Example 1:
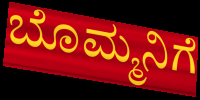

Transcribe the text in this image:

ಬೊಮ್ಮನಿಗೆ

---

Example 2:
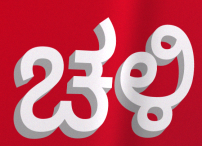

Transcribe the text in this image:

ಚಳಿ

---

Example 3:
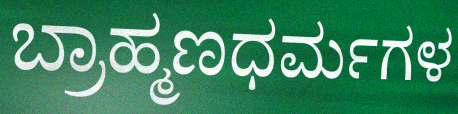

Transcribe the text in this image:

ಬ್ರಾಹ್ಮಣಧರ್ಮಗಳ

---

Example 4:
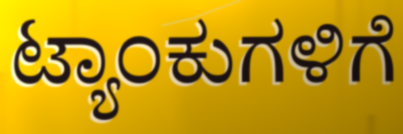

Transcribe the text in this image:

ಟ್ಯಾಂಕುಗಳಿಗೆ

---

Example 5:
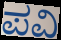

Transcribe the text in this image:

ಪವಿ